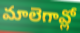
మాలెగావ్లో